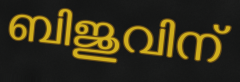
ബിജുവിന്